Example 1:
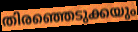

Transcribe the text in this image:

തിരഞ്ഞെടുക്കയും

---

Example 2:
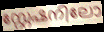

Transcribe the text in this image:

സ്റ്റേഷനിലോ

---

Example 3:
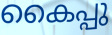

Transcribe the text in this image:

കൈപ്പു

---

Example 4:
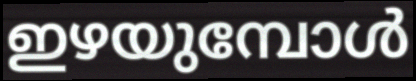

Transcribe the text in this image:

ഇഴയുമ്പോൾ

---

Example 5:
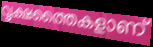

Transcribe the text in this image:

വൃക്ഷത്തൈകളാണ്